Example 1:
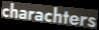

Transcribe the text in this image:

charachters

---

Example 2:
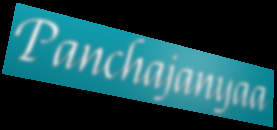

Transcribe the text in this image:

Panchajanyaa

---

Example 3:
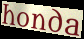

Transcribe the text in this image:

honda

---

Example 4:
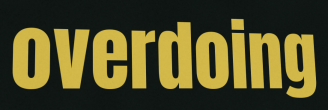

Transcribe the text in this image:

overdoing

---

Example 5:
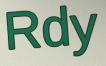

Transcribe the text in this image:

Rdy